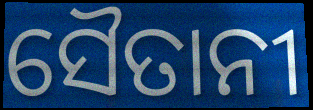
ସୈତାନୀ